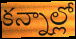
కన్నాల్లో